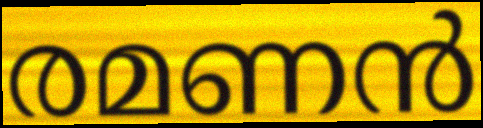
രമണൻ